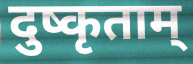
दुष्कृताम्